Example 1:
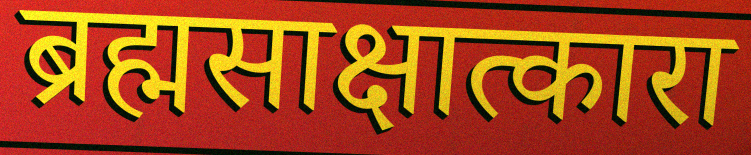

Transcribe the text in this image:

ब्रह्मसाक्षात्कारा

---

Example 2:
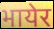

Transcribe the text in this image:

भायेर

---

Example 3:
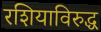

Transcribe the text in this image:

रशियाविरुद्ध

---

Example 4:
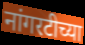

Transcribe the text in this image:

नांगरटीच्या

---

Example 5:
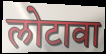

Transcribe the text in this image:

लोटावा